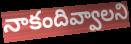
నాకందివ్వాలని